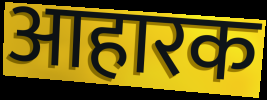
आहारक